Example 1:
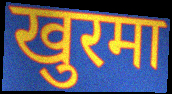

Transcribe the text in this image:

खुरमा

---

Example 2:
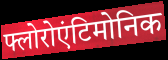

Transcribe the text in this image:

फ्लोरोएंटिमोनिक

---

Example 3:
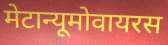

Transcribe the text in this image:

मेटान्यूमोवायरस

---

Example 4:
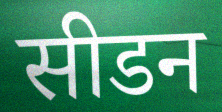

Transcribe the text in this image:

सीडन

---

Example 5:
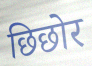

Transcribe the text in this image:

छिछोर